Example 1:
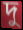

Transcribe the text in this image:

দু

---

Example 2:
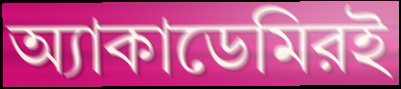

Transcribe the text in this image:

অ্যাকাডেমিরই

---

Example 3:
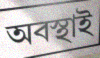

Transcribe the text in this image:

অবস্থাই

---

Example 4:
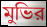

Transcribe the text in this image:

মুভির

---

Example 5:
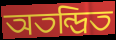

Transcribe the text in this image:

অতন্দ্রিত